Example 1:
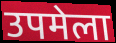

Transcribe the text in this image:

उपमेला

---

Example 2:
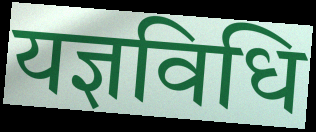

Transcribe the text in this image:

यज्ञविधि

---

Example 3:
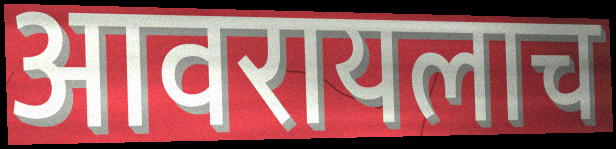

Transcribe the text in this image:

आवरायलाच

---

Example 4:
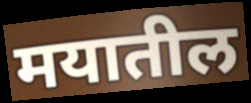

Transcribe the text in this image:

मयातील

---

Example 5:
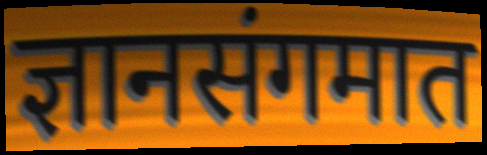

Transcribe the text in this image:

ज्ञानसंगमात